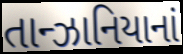
તાન્ઝાનિયાનાં